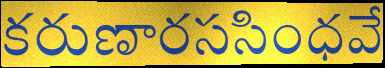
కరుణారససింధవే